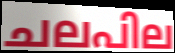
ചലപില